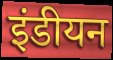
इंडीयन